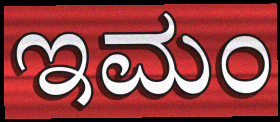
ಇಮಂ